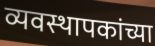
व्यवस्थापकांच्या